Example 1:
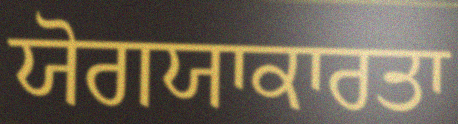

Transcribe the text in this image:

ਯੋਗਯਾਕਾਰਤਾ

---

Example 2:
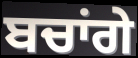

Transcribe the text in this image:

ਬਚਾਂਗੇ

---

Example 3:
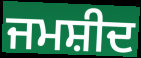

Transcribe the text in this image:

ਜਮਸ਼ੀਦ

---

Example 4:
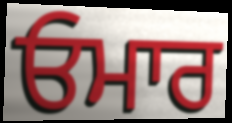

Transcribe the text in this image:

ਓਮਾਰ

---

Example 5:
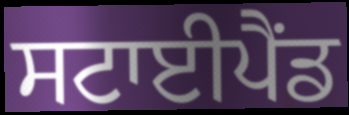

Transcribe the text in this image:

ਸਟਾਈਪੈਂਡ